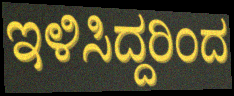
ಇಳಿಸಿದ್ದರಿಂದ